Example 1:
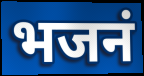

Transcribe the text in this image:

भजनं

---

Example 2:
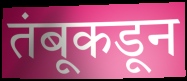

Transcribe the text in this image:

तंबूकडून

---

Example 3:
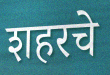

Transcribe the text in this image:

शहरचे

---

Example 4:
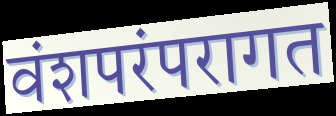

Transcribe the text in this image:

वंशपरंपरागत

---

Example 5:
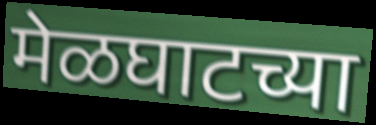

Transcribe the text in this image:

मेळघाटच्या